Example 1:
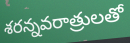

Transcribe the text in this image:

శరన్నవరాత్రులతో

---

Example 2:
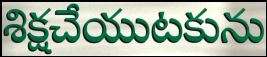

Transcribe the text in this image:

శిక్షచేయుటకును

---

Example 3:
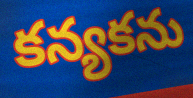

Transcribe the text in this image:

కన్యకను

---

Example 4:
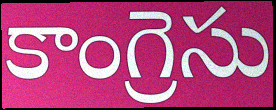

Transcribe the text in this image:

కాంగ్రెసు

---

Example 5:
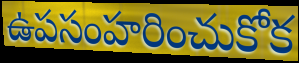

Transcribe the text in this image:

ఉపసంహరించుకోక